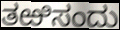
ತಱಿಸಂದು